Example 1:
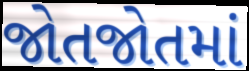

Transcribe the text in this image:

જોતજોતમાં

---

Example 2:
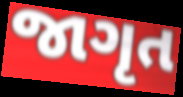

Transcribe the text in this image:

જાગૃત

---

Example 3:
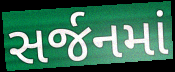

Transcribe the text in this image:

સર્જનમાં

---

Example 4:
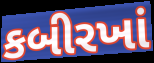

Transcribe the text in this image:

કબીરખાં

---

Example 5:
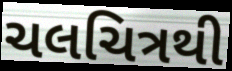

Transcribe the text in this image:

ચલચિત્રથી